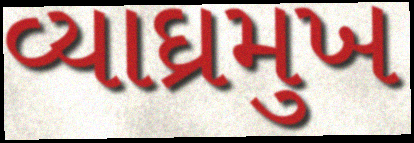
વ્યાઘ્રમુખ